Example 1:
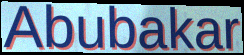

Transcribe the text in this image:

Abubakar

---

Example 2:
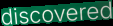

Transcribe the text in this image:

discovered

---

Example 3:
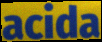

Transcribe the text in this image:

acida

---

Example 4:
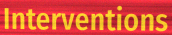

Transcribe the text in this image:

Interventions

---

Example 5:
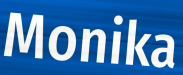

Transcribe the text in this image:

Monika